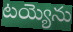
టయ్యెను